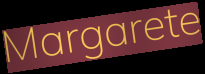
Margarete